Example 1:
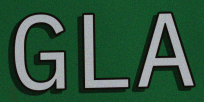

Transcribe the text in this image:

GLA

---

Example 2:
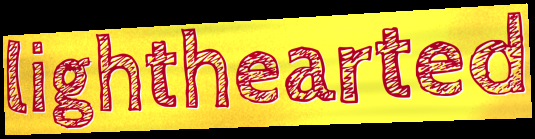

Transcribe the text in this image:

lighthearted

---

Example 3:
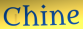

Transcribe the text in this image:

Chine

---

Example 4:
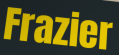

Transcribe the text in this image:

Frazier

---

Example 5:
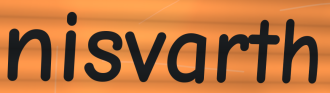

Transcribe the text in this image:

nisvarth